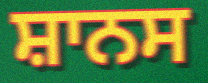
ਸ਼ਾਨਸ